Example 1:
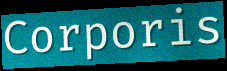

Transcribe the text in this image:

Corporis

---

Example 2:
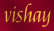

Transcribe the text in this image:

vishay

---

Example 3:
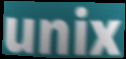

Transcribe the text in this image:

unix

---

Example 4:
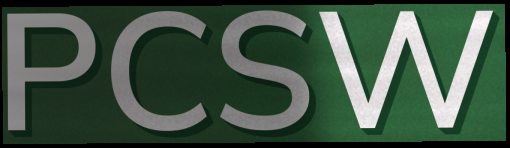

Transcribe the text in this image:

PCSW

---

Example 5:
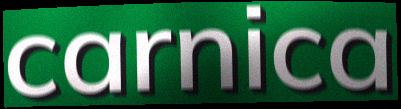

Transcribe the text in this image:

carnica